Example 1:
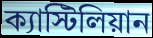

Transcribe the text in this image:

ক্যাস্টিলিয়ান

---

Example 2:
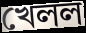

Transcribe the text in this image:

খেলল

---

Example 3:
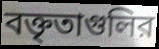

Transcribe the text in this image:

বক্তৃতাগুলির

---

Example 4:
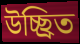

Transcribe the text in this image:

উচ্ছ্রিত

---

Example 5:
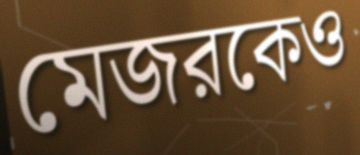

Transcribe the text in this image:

মেজরকেও